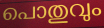
പൊതുവും